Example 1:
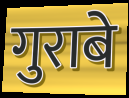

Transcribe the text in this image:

गुराबे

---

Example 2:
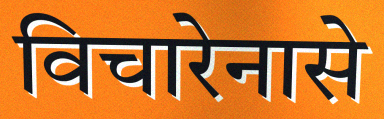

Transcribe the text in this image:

विचारेनासे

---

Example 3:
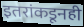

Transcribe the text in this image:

इतरांकडूनही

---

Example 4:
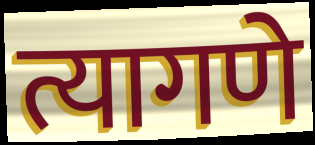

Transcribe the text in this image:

त्यागणे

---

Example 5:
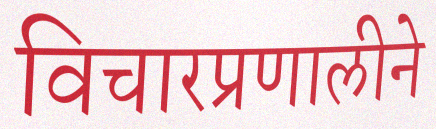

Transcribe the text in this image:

विचारप्रणालीने